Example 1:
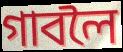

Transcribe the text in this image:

গাবলৈ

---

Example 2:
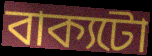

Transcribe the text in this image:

বাক্যটো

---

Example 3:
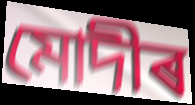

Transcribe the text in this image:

মোদীৰ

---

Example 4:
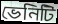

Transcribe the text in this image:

ভেনিটি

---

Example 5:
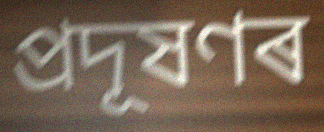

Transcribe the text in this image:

প্ৰদূষণৰ